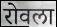
रोवला